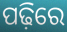
ପଢ଼ିରେ